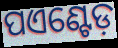
ପଏଣ୍ଟେଡ଼